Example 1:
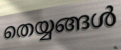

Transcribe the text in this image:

തെയ്യങ്ങൾ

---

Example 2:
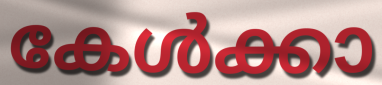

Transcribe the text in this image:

കേൾക്കാ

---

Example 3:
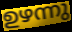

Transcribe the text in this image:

ഉഴന്നു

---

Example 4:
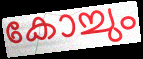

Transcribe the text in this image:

കോച്ചും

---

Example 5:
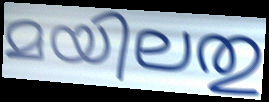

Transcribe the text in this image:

മയിലതു